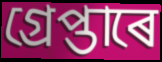
গ্ৰেপ্তাৰে